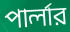
পার্লার